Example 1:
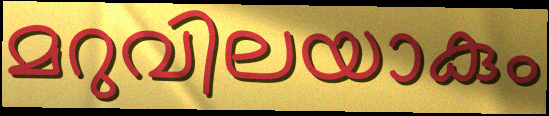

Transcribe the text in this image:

മറുവിലയാകും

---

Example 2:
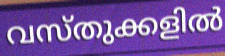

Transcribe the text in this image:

വസ്തുക്കളിൽ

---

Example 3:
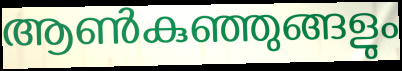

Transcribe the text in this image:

ആൺകുഞ്ഞുങ്ങളും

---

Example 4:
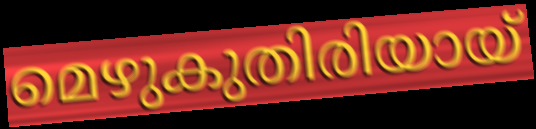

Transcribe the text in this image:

മെഴുകുതിരിയായ്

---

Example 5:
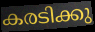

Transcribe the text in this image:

കരടിക്കു